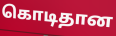
கொடிதான